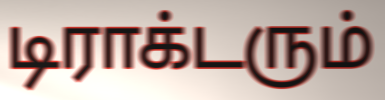
டிராக்டரும்